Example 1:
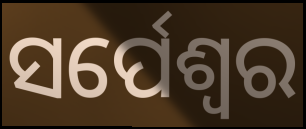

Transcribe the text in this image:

ସର୍ପେଶ୍ୱର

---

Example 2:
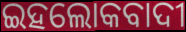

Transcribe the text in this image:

ଇହଲୋକବାଦୀ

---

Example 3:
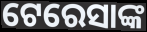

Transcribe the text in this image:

ଟେରେସାଙ୍କ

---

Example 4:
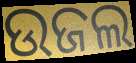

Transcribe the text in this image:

ଉଜଲ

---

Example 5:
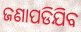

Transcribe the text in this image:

ଜଣାପଡିଯିବ